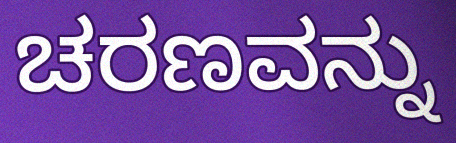
ಚರಣವನ್ನು